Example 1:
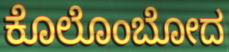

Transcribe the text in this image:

ಕೊಲೊಂಬೋದ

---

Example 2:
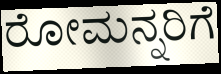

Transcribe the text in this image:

ರೋಮನ್ನರಿಗೆ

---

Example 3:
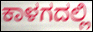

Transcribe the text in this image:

ಕಾಳಗದಲ್ಲಿ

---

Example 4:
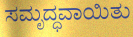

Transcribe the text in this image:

ಸಮೃದ್ಧವಾಯಿತು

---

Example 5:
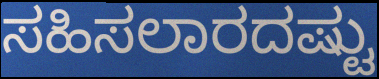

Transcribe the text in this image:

ಸಹಿಸಲಾರದಷ್ಟು